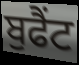
ਬੁਫੈਂਟ